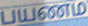
பயணம